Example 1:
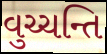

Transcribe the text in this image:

વુચ્ચન્તિ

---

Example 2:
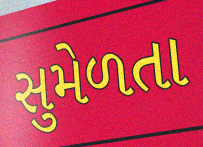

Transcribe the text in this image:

સુમેળતા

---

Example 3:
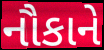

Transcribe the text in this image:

નૌકાને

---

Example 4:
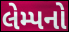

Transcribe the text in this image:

લેમ્પનો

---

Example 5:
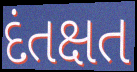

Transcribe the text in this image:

દંતક્ષત